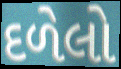
દળેલો